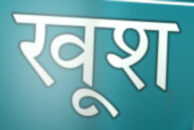
खूश